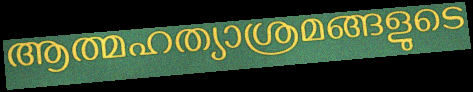
ആത്മഹത്യാശ്രമങ്ങളുടെ